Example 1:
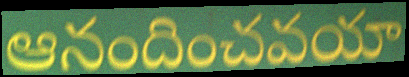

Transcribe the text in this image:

ఆనందించవయా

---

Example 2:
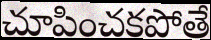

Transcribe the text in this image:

చూపించకపోతే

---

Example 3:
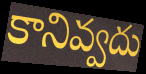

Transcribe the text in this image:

కానివ్వదు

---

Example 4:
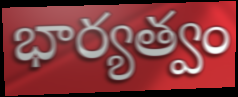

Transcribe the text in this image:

భార్యత్వం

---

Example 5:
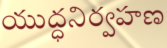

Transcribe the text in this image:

యుద్ధనిర్వహణ